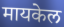
मायकेल